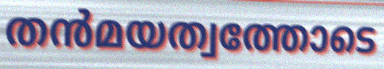
തൻമയത്വത്തോടെ